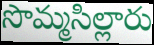
సొమ్మసిల్లారు